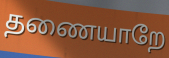
தணையாறே